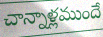
చాన్నాళ్లముందే